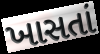
ખાસતાં